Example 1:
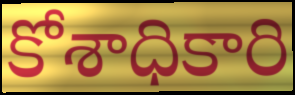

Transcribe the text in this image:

కోశాధికారి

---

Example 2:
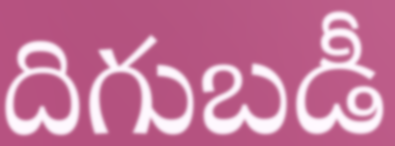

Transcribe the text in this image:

దిగుబడీ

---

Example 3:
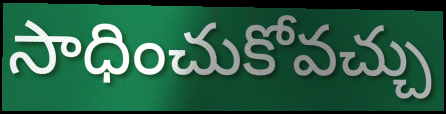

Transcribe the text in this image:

సాధించుకోవచ్చు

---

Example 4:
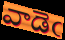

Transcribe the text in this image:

వాడెఁ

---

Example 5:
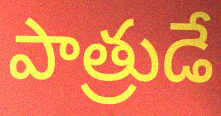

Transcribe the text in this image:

పాత్రుడే